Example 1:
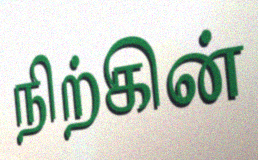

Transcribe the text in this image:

நிற்கின்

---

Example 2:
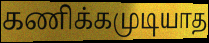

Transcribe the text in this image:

கணிக்கமுடியாத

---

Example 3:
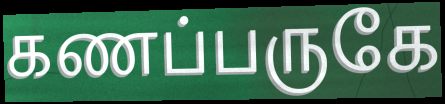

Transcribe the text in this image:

கணப்பருகே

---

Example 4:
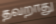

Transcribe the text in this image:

தவறாது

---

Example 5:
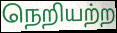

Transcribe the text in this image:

நெறியற்ற